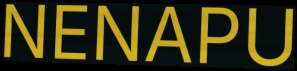
NENAPU